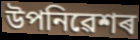
উপনিৱেশৰ